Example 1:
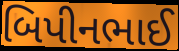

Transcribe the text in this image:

બિપીનભાઈ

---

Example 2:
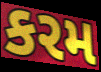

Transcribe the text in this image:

કરમ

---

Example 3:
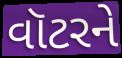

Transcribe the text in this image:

વૉટરને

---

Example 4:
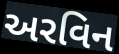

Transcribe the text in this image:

અરવિન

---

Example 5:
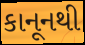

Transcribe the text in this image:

કાનૂનથી